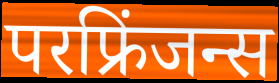
परफ्रिंजन्स